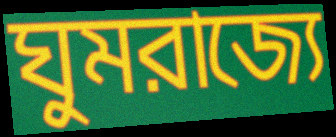
ঘুমরাজ্যে